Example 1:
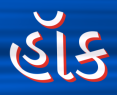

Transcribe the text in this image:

હૉક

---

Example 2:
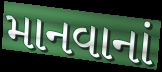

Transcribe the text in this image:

માનવાનાં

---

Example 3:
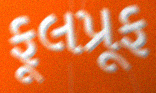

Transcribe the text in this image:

ફૂલપ્રૂફ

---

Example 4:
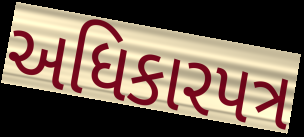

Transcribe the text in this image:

અધિકારપત્ર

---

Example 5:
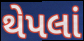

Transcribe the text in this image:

થેપલાં